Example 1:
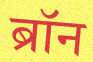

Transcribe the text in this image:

ब्रॉन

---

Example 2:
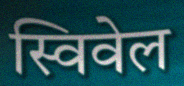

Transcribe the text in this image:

स्विवेल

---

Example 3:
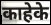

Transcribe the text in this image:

काहेके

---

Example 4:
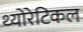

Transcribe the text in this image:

थ्योरेटिकल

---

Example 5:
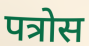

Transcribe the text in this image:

पत्रोस